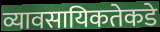
व्यावसायिकतेकडे